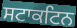
ਸਟਾਕਟਿਨ